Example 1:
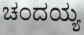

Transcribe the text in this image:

ಚಂದಯ್ಯ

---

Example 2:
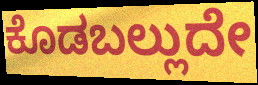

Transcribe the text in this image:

ಕೊಡಬಲ್ಲುದೇ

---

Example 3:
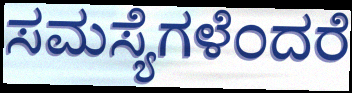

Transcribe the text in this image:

ಸಮಸ್ಯೆಗಳೆಂದರೆ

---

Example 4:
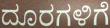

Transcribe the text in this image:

ದೂರಗಳಿಗೆ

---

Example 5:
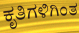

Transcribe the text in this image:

ಕೃತಿಗಳಿಗಿಂತ